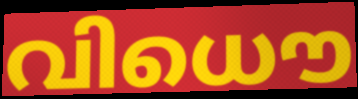
വിധൌ